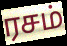
ரசம்